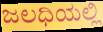
ಜಲಧಿಯಲ್ಲಿ